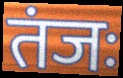
तंजः